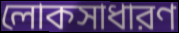
লোকসাধারণ